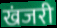
खंजरी